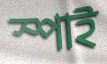
স্পাই